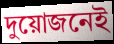
দুয়োজনেই